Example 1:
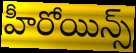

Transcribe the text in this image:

హీరోయిన్స్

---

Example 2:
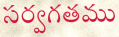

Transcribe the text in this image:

సర్వగతము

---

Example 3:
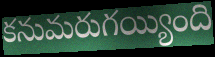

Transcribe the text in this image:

కనుమరుగయ్యింది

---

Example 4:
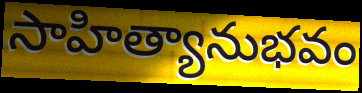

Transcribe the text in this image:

సాహిత్యానుభవం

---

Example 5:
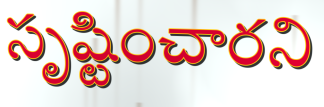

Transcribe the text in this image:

సృష్టించారని